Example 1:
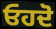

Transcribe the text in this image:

ਓਹਦੋ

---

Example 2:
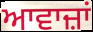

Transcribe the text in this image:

ਆਵਾਜ਼ਾਂ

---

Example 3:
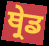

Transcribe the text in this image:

ਥ੍ਰੇਡ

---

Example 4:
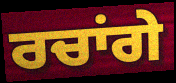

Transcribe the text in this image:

ਰਚਾਂਗੇ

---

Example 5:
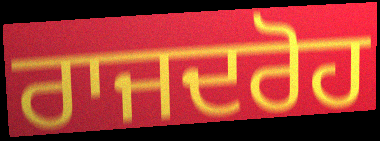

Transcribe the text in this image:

ਰਾਜਦਰੋਹ